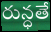
రున్ధతే